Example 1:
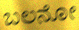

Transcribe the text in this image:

ಬಲನೋ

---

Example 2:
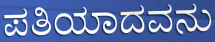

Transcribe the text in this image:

ಪತಿಯಾದವನು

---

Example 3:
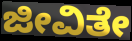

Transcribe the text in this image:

ಜೀವಿತೇ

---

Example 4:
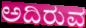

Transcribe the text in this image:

ಅದಿರುವ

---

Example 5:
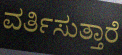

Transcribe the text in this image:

ವರ್ತಿಸುತ್ತಾರೆ